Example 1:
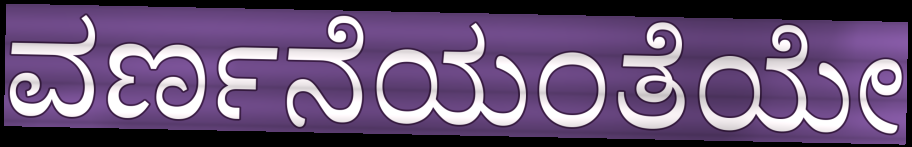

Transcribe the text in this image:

ವರ್ಣನೆಯಂತೆಯೇ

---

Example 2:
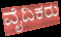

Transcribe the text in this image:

ವೈದಿಕರು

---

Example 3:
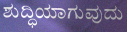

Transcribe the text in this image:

ಶುದ್ಧಿಯಾಗುವುದು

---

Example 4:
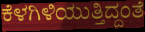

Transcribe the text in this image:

ಕೆಳಗಿಳಿಯುತ್ತಿದ್ದಂತೆ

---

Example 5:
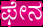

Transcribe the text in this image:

ಫೇನ